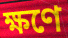
ক্ষণে